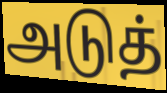
அடுத்